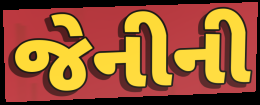
જેનીની